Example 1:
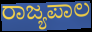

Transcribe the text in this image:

ರಾಜ್ಯಪಾಲ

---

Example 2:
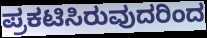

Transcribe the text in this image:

ಪ್ರಕಟಿಸಿರುವುದರಿಂದ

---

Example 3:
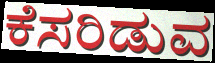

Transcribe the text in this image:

ಕೆಸರಿಡುವ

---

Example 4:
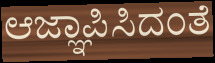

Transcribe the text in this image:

ಆಜ್ಞಾಪಿಸಿದಂತೆ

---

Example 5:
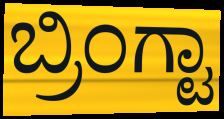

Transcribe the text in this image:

ಬ್ರಿಂಗ್ಟಾ